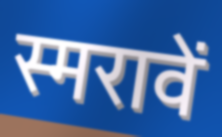
स्मरावें